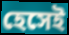
হেসেই